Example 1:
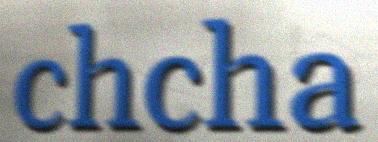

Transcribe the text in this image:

chcha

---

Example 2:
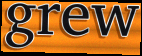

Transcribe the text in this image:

grew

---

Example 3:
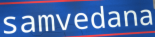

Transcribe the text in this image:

samvedana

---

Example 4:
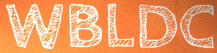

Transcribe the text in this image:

WBLDC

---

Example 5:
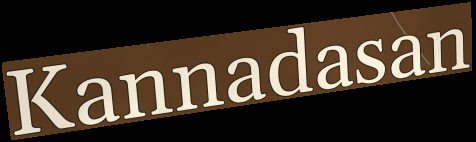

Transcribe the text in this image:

Kannadasan